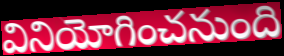
వినియోగించనుంది